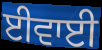
ਈਵਾਈ